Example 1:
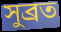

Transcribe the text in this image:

সুব্রত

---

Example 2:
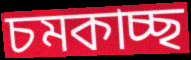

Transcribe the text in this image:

চমকাচ্ছ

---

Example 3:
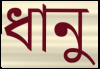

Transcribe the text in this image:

ধানু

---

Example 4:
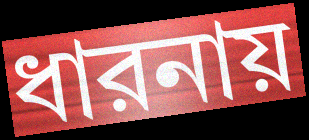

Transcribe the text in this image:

ধারনায়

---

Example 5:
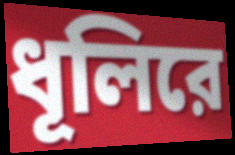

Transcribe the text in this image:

ধূলিরে